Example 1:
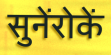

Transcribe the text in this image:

सुनेंरोकें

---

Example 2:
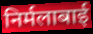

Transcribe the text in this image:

निर्मलाबाई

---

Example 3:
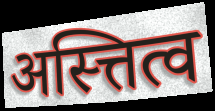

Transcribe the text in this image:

अस्त्तित्व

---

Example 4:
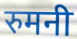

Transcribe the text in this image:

रुमनी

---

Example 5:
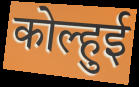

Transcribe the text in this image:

कोल्हुई